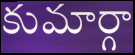
కుమార్గా